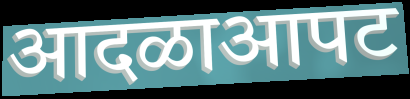
आदळाआपट